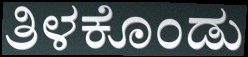
ತಿಳಕೊಂಡು